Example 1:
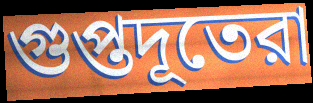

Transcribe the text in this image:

গুপ্তদূতেরা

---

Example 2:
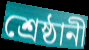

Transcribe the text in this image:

শ্রেষ্ঠানী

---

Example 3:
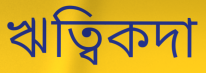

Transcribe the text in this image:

ঋত্বিকদা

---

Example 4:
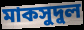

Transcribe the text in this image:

মাকসুদুল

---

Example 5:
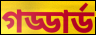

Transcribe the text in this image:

গড্ডার্ড